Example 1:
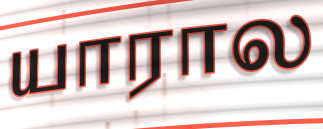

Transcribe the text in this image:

யாரால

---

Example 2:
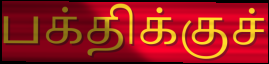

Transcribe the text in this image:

பக்திக்குச்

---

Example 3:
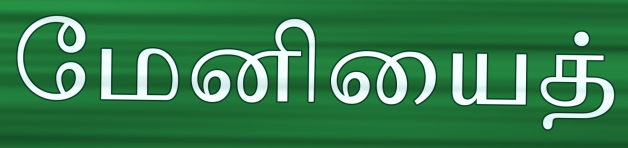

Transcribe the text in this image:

மேனியைத்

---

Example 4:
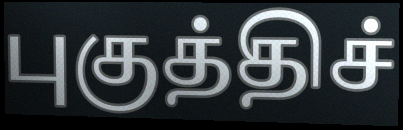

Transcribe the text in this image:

புகுத்திச்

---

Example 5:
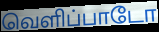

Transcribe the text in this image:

வெளிப்பாடோ